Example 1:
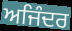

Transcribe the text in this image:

ਅਜਿੰਦਰ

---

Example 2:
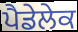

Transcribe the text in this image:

ਪੈਡੇਲੇਕ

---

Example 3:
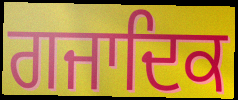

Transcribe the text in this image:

ਗਜਾਦਿਕ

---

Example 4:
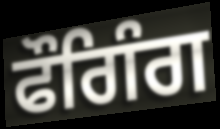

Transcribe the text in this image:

ਫੌਗਿੰਗ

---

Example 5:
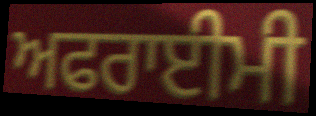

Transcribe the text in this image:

ਅਫਰਾਈਮੀ